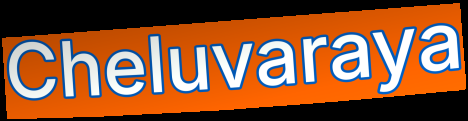
Cheluvaraya